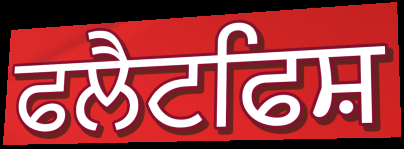
ਫਲੈਟਫਿਸ਼